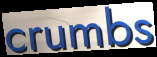
crumbs